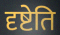
दृष्टेति